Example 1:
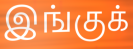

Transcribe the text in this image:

இங்குக்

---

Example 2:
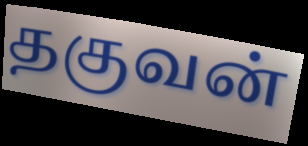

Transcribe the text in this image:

தகுவன்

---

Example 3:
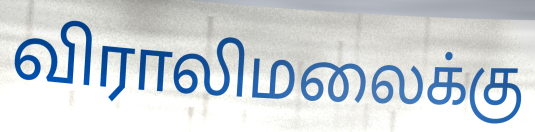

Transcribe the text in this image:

விராலிமலைக்கு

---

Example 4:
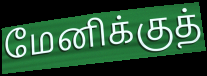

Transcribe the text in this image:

மேனிக்குத்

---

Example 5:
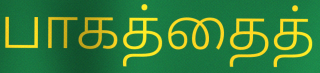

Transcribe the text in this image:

பாகத்தைத்